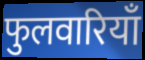
फुलवारियाँ